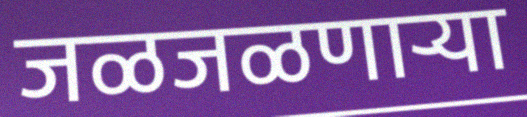
जळजळणाऱ्या